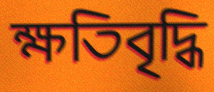
ক্ষতিবৃদ্ধি